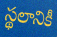
స్థలానికీ